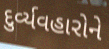
દુર્વ્યવહારોને